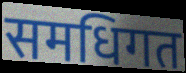
समधिगत